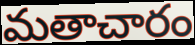
మతాచారం